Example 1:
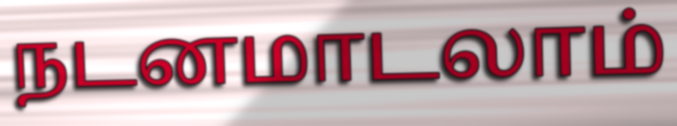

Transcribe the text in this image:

நடனமாடலாம்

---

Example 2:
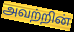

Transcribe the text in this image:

அவற்றின்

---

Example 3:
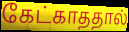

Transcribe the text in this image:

கேட்காததால்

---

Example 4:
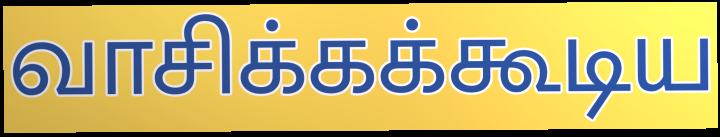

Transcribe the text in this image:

வாசிக்கக்கூடிய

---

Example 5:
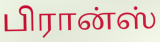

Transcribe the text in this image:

பிரான்ஸ்